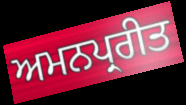
ਅਮਨਪ੍ਰਰੀਤ